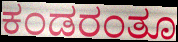
ಕಂಡರಂತೂ